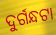
ଦୁର୍ଗନ୍ଧଟା